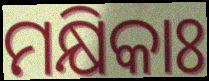
ମକ୍ଷିକାଃ